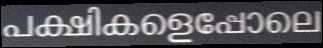
പക്ഷികളെപ്പോലെ